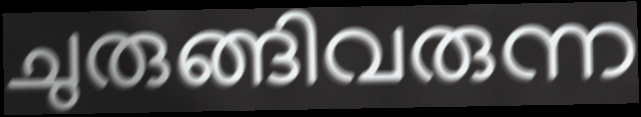
ചുരുങ്ങിവരുന്ന